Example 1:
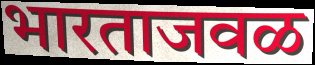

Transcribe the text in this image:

भारताजवळ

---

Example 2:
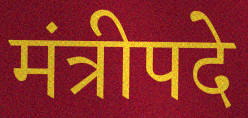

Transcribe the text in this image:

मंत्रीपदे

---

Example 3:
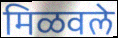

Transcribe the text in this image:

मिळवले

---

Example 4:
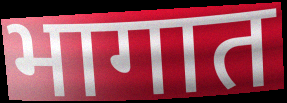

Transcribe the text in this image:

भागात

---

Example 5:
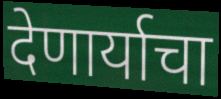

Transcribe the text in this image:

देणार्याचा